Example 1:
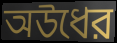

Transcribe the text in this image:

অউধের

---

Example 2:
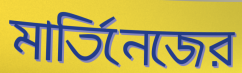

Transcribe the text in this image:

মার্তিনেজের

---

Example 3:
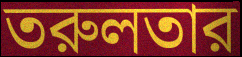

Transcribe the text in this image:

তরুলতার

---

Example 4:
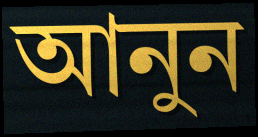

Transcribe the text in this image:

আনুন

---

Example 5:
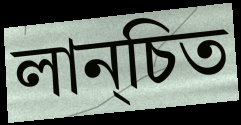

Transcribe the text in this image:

লান্চিত